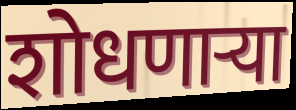
शोधणाऱ्या